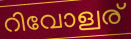
റിവോള്വര്